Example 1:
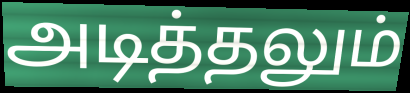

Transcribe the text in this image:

அடித்தலும்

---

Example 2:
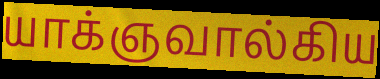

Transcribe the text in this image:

யாக்ஞவால்கிய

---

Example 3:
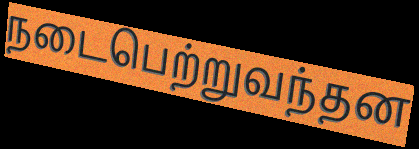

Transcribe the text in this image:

நடைபெற்றுவந்தன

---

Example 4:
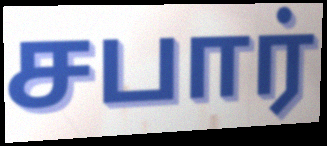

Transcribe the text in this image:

சபார்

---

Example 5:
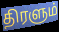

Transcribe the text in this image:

திரளும்